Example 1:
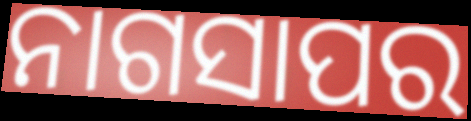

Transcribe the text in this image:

ନାଗସାପର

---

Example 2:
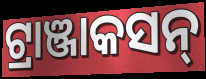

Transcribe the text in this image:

ଟ୍ରାଞ୍ଜାକସନ୍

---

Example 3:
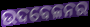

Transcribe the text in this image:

ଉଦବେଳନର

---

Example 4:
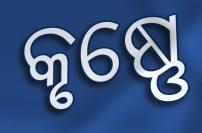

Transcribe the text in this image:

କୃଷ୍ଣେ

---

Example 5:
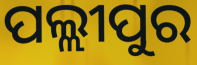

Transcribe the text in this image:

ପଲ୍ଲୀପୁର